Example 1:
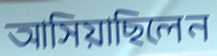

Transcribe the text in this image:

আসিয়াছিলেন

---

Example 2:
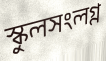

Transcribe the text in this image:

স্কুলসংলগ্ন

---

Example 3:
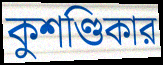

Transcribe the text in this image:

কুশণ্ডিকার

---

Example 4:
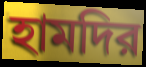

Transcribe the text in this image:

হামদির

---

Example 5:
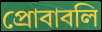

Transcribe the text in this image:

প্রোবাবলি